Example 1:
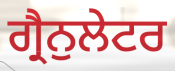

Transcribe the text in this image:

ਗ੍ਰੈਨੁਲੇਟਰ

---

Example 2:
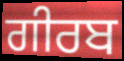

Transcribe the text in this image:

ਗੀਰਬ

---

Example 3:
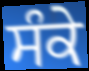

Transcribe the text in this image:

ਸੰਕੇ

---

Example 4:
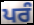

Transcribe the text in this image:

ਪਰੰ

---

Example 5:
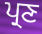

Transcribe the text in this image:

ਪ੍ਰਣ